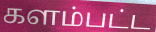
களம்பட்ட